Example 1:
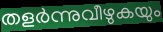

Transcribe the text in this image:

തളർന്നുവീഴുകയും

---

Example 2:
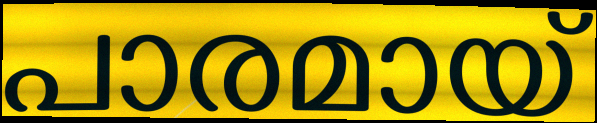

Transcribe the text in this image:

പാരമായ്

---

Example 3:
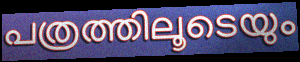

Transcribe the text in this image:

പത്രത്തിലൂടെയും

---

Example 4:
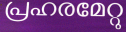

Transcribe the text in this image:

പ്രഹരമേറ്റു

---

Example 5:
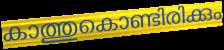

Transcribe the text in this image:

കാത്തുകൊണ്ടിരിക്കും